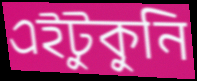
এইটুকুনি